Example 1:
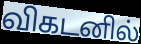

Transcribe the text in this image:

விகடனில்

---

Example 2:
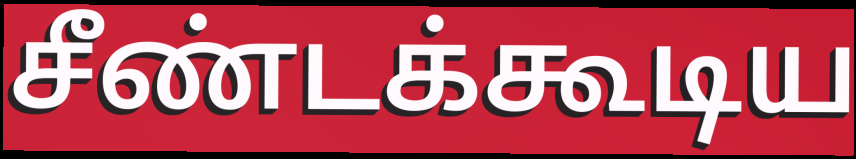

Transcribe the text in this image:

சீண்டக்கூடிய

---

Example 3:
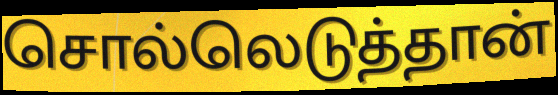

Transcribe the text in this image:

சொல்லெடுத்தான்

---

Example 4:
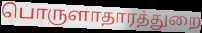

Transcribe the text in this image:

பொருளாதாரத்துறை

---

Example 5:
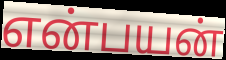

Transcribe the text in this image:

என்பயன்